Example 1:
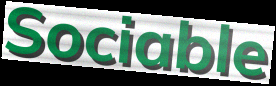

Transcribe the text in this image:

Sociable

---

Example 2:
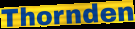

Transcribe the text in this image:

Thornden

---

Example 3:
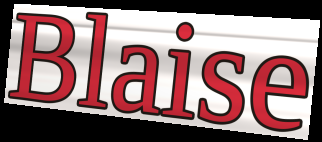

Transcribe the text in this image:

Blaise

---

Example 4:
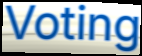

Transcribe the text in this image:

Voting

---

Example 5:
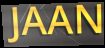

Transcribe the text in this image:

JAAN